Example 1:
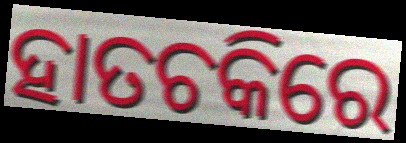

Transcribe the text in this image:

ହାତଚକିରେ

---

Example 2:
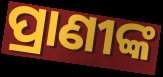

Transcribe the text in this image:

ପ୍ରାଣୀଙ୍କ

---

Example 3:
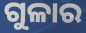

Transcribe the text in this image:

ଗୁଳାର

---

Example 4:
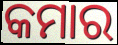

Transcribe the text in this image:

କମାର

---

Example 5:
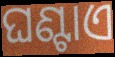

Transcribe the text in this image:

ଘଣ୍ଟାଏ